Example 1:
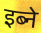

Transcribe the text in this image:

इब्ने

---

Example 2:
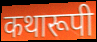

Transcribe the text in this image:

कथारूपी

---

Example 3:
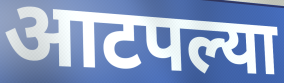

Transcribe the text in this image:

आटपल्या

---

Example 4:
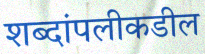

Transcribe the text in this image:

शब्दांपलीकडील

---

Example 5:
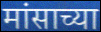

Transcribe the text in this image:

मांसाच्या